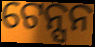
ଟେନ୍ସନ